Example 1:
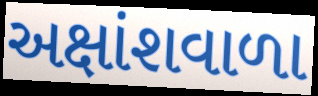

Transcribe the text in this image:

અક્ષાંશવાળા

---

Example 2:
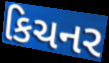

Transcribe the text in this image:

કિચનર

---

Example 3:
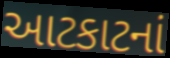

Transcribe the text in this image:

આટકાટનાં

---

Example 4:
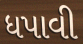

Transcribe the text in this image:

ધપાવી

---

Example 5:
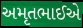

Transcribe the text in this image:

અમૃતભાઈએ